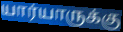
யார்யாருக்கு